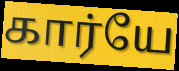
கார்யே